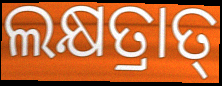
ଲକ୍ଷତ୍ରାତ୍